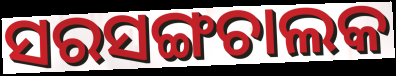
ସରସଙ୍ଗଚାଲକ